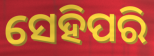
ସେହିପରି